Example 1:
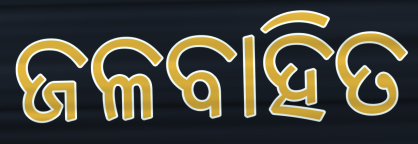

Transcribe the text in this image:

ଜଳବାହିତ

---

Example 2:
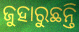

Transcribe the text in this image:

ଜୁହାରୁଛନ୍ତି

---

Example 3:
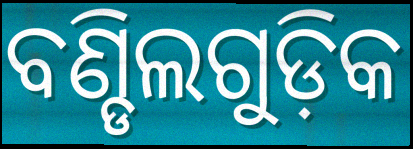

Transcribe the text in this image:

ବଣ୍ଡିଲଗୁଡ଼ିକ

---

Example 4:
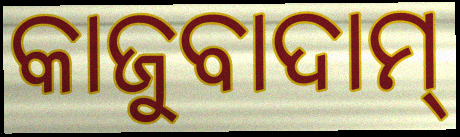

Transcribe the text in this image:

କାଜୁବାଦାମ୍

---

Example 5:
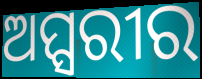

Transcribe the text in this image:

ଅପ୍ସରୀର